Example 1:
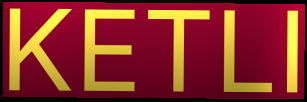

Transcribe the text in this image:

KETLI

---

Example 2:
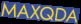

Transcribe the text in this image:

MAXQDA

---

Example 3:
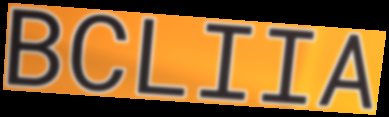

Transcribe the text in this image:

BCLIIA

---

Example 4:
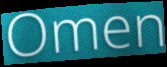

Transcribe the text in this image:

Omen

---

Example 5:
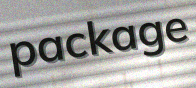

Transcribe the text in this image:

package